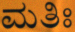
ಮತಿಃ